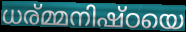
ധര്മ്മനിഷ്ഠയെ